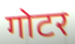
गोटर